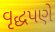
વૃદ્ધપણે